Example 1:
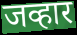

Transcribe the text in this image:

जव्हार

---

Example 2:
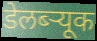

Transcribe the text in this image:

डेलब्ऱ्यूक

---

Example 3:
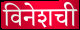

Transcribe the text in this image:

विनेशची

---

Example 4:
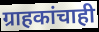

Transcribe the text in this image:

ग्राहकांचाही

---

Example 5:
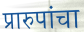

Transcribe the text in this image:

प्रारुपांचा